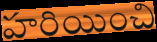
హరియించి